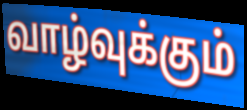
வாழ்வுக்கும்